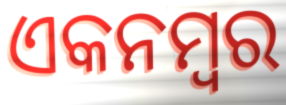
ଏକନମ୍ବର